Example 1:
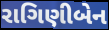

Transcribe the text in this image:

રાગિણીબેન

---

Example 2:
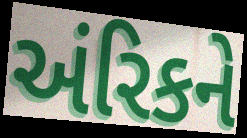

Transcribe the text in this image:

અંરિકને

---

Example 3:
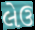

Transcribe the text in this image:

લેઉ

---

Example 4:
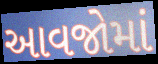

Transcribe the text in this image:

આવજોમાં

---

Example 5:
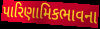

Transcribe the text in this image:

પારિણામિકભાવના